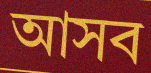
আসব